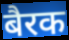
बैरक